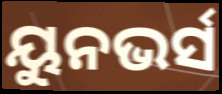
ୟୁନଭର୍ସ